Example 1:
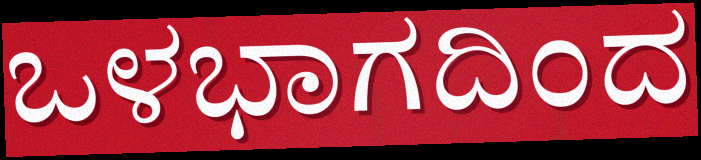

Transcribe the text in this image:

ಒಳಭಾಗದಿಂದ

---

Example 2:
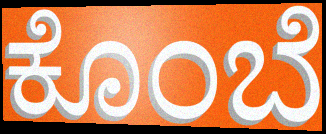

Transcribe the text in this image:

ಕೊಂಬೆ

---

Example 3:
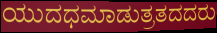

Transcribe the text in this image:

ಯುದಧಮಾಡುತ್ರತದದರು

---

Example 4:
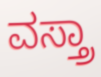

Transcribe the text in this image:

ವಸ್ತ್ರಾ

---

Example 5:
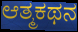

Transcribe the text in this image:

ಆತ್ಮಕಥನ